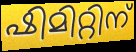
ഷിമിറ്റിന്